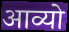
आव्यो